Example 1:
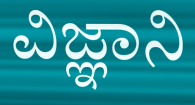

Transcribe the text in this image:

ವಿಜ್ಞಾನಿ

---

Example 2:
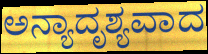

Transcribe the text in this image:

ಅನ್ಯಾದೃಶ್ಯವಾದ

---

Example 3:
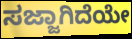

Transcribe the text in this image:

ಸಜ್ಜಾಗಿದೆಯೇ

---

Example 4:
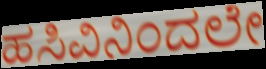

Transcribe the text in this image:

ಹಸಿವಿನಿಂದಲೇ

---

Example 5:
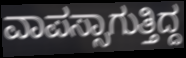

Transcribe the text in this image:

ವಾಪಸ್ಸಾಗುತ್ತಿದ್ದ